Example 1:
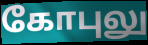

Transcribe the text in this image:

கோபுலு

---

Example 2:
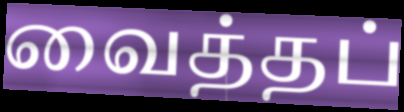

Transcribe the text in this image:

வைத்தப்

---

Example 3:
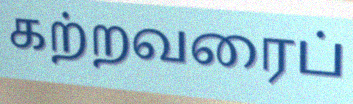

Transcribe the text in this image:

கற்றவரைப்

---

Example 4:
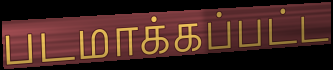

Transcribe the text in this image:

படமாக்கப்பட்ட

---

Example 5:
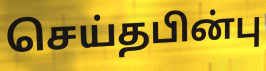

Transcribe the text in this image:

செய்தபின்பு